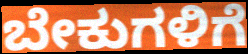
ಬೇಕುಗಳಿಗೆ